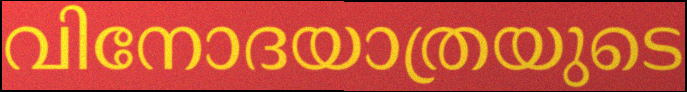
വിനോദയാത്രയുടെ